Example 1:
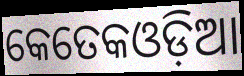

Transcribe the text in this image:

କେତେକଓଡ଼ିଆ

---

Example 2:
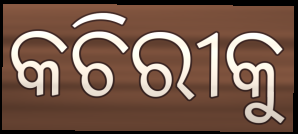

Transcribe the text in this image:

କଚିରୀକୁ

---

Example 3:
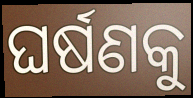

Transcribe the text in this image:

ଘର୍ଷଣକୁ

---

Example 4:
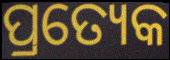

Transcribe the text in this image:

ପ୍ରତ୍ୟେକ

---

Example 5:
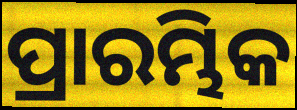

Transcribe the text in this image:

ପ୍ରାରମ୍ଭିକ